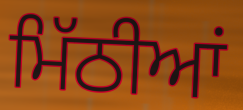
ਮਿੱਠੀਆਂ